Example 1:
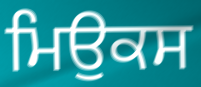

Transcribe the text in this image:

ਮਿਉਕਸ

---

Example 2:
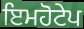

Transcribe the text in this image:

ਇਮਹੋਟੇਪ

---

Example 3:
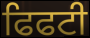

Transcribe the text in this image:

ਫਿਫਟੀ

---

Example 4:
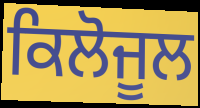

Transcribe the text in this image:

ਕਿਲੋਜੂਲ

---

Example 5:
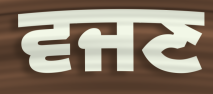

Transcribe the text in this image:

ਵਜਣ